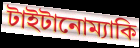
টাইটানোম্যাকি